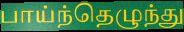
பாய்ந்தெழுந்து